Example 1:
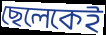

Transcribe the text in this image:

ছেলেকেই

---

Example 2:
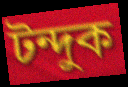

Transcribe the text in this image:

টন্দুক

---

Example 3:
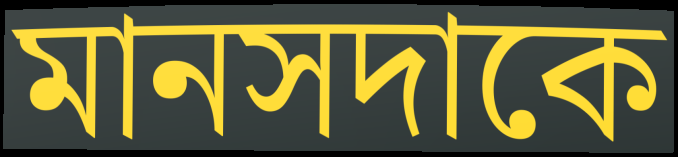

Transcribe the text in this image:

মানসদাকে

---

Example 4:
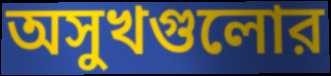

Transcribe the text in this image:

অসুখগুলোর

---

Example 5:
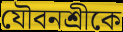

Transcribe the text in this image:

যৌবনশ্রীকে